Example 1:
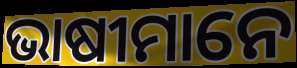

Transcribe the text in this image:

ଭାଷୀମାନେ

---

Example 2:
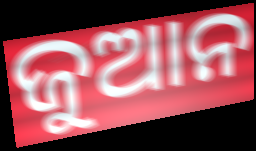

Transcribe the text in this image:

ଜୁଆନ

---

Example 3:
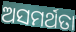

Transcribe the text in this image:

ଅସମର୍ଥତା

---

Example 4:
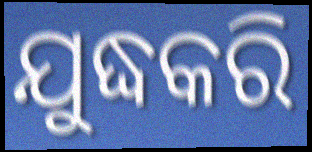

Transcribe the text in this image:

ଯୁଦ୍ଧକରି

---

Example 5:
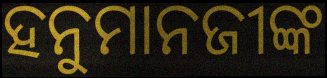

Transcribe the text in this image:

ହନୁମାନଜୀଙ୍କ